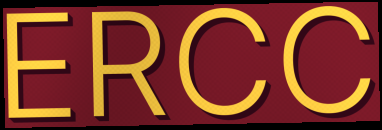
ERCC